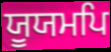
ਯੂਯਮਪਿ